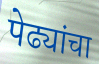
पेढ्यांचा